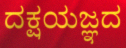
ದಕ್ಷಯಜ್ಞದ